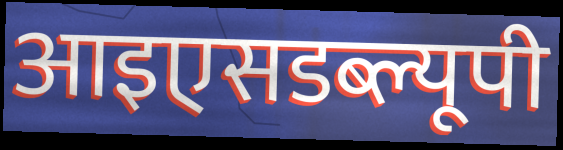
आइएसडब्ल्यूपी